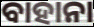
ବାହାନା